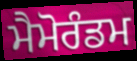
ਮੈਮੋਰੰਡਮ